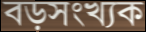
বড়সংখ্যক